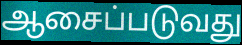
ஆசைப்படுவது